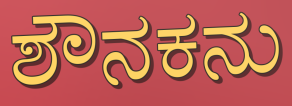
ಶೌನಕನು